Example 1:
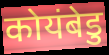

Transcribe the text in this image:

कोयंबेडु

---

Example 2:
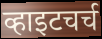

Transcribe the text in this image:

व्हाइटचर्च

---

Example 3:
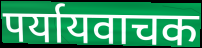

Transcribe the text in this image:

पर्यायवाचक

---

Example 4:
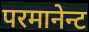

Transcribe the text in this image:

परमानेन्ट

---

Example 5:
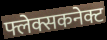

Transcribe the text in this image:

फ्लेक्सकनेक्ट